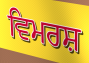
ਵਿਮਰਸ਼